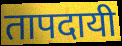
तापदायी